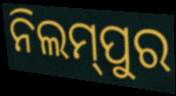
ନିଲମ୍‍ପୁର